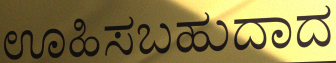
ಊಹಿಸಬಹುದಾದ